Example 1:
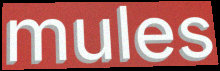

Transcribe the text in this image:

mules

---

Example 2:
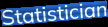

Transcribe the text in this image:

Statistician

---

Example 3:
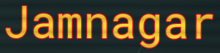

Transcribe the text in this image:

Jamnagar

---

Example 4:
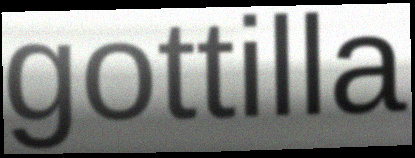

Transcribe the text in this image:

gottilla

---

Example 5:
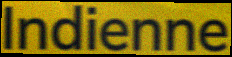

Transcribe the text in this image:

Indienne